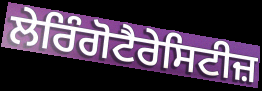
ਲੇਰਿੰਗੋਟੈਰੇਸਿਟੀਜ਼